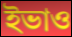
ইভাও